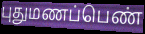
புதுமணப்பெண்